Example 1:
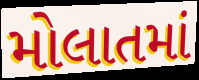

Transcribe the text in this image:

મોલાતમાં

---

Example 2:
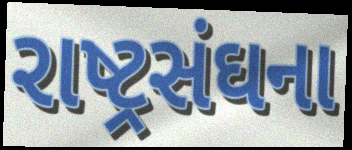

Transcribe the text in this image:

રાષ્ટ્રસંઘના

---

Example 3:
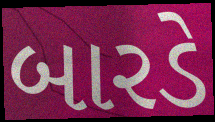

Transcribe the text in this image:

બારડે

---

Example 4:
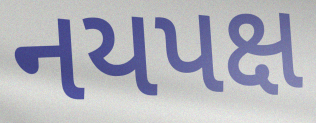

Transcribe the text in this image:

નયપક્ષ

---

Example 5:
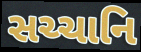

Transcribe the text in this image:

સચ્ચાનિ